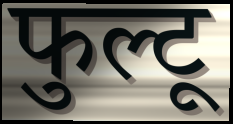
फुल्टू